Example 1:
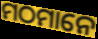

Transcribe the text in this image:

ମଠମାନେ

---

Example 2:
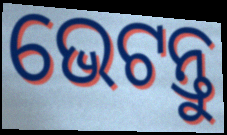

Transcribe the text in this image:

ଭେଟନ୍ତୁ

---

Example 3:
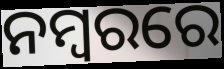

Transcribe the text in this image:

ନମ୍ବରରେ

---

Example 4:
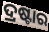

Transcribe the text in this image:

ଦ୍ରଷ୍ଟାର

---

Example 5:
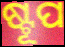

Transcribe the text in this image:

ଷ୍ଟୂପ